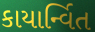
કાયાર્ન્વિત